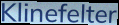
Klinefelter